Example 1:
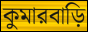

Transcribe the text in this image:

কুমারবাড়ি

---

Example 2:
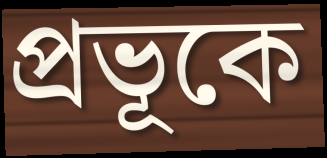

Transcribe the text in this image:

প্রভূকে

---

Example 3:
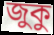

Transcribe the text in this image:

জুকু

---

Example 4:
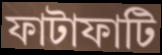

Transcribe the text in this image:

ফাটাফাটি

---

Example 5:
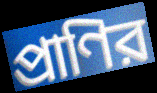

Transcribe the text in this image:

প্রাণির